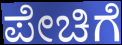
ಪೇಚಿಗೆ